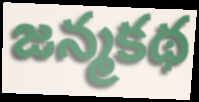
జన్మకథ